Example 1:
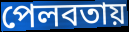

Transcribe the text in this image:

পেলবতায়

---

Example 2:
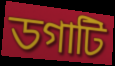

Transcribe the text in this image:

ডগাটি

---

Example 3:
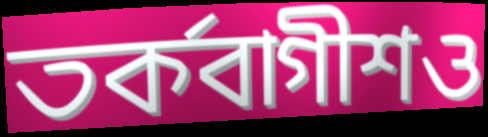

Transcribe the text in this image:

তর্কবাগীশও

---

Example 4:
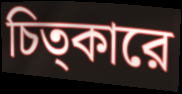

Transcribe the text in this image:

চিত্কারে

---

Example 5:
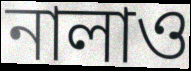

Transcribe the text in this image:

নালাও